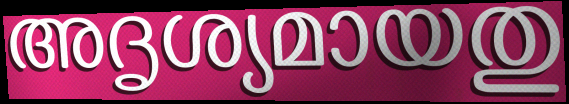
അദൃശ്യമായതു